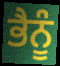
ਭੈਨੂੰ